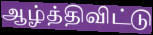
ஆழ்த்திவிட்டு